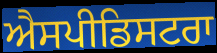
ਐਸਪੀਡਿਸਟਰਾ